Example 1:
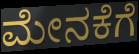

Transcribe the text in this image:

ಮೇನಕೆಗೆ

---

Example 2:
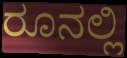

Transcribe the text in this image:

ರೂನಲ್ಲಿ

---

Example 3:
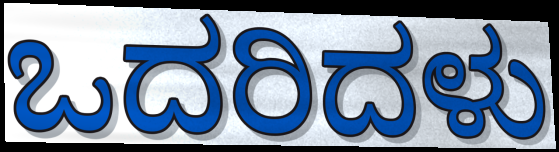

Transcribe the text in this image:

ಒದರಿದಳು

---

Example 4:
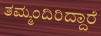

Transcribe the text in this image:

ತಮ್ಮಂದಿರಿದ್ದಾರೆ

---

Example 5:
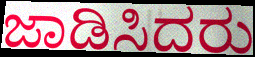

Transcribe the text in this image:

ಜಾಡಿಸಿದರು